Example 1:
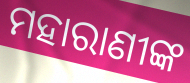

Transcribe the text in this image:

ମହାରାଣୀଙ୍କ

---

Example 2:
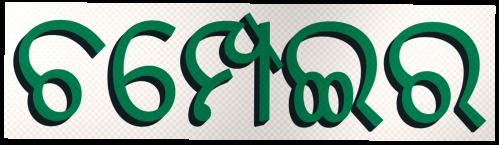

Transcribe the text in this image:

ଚମ୍ପେଇର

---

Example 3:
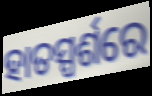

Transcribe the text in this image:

ହାତସ୍ପର୍ଶରେ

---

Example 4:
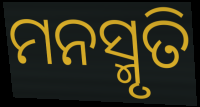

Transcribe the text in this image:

ମନସ୍ମୃତି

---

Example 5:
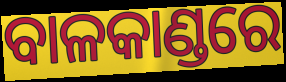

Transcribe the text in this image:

ବାଳକାଣ୍ଡରେ